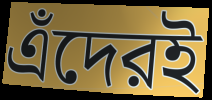
এঁদেরই